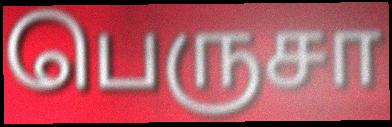
பெருசா